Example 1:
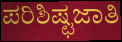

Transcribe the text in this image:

ಪರಿಶಿಷ್ಟಜಾತಿ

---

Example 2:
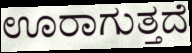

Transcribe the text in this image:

ಊರಾಗುತ್ತದೆ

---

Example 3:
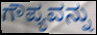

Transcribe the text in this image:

ಗೌಪ್ಯವನ್ನು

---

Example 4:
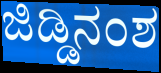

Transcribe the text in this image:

ಜಿಡ್ಡಿನಂಶ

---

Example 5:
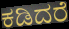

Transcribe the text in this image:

ಕಡಿದರೆ